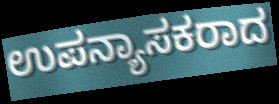
ಉಪನ್ಯಾಸಕರಾದ